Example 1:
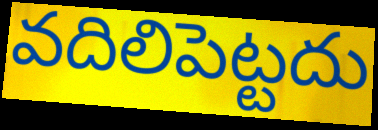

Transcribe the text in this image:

వదిలిపెట్టదు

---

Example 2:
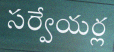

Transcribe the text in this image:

సర్వేయర్ల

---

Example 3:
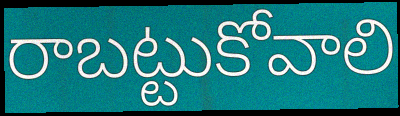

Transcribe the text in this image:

రాబట్టుకోవాలి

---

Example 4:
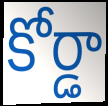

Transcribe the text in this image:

కోర్డా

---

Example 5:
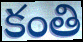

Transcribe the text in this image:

కంతి